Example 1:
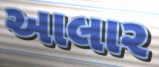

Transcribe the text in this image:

આલાર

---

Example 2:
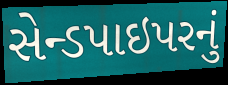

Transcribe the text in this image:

સેન્ડપાઇપરનું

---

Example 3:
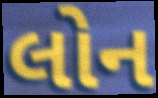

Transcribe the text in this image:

લોન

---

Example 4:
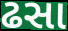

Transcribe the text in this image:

ઢસા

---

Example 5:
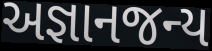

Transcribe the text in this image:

અજ્ઞાનજન્ય